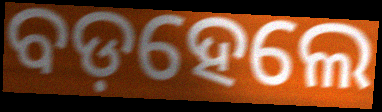
ବଡ଼ହେଲେ